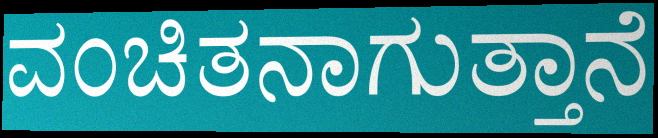
ವಂಚಿತನಾಗುತ್ತಾನೆ